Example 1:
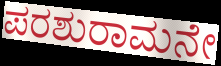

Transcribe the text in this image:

ಪರಶುರಾಮನೇ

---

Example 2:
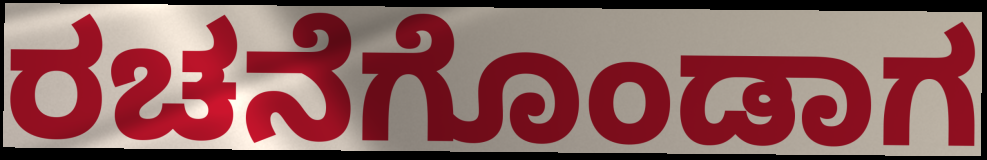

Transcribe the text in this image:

ರಚನೆಗೊಂಡಾಗ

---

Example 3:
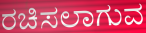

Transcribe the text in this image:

ರಚಿಸಲಾಗುವ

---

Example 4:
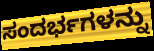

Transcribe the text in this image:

ಸಂದರ್ಭಗಳನ್ನು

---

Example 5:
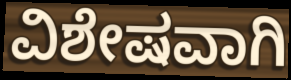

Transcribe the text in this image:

ವಿಶೇಷವಾಗಿ